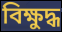
বিক্ষুদ্ধ